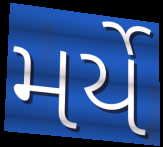
મર્યે